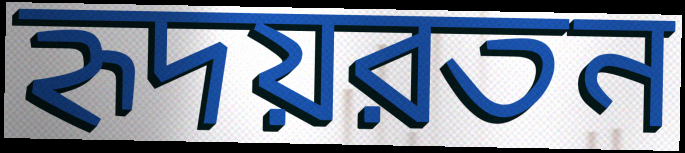
হৃদয়রতন